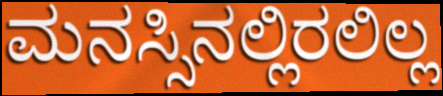
ಮನಸ್ಸಿನಲ್ಲಿರಲಿಲ್ಲ